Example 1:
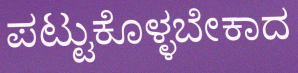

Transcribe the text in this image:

ಪಟ್ಟುಕೊಳ್ಳಬೇಕಾದ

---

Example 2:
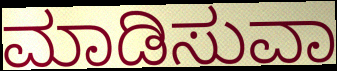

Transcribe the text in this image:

ಮಾಡಿಸುವಾ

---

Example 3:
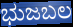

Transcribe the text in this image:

ಭುಜಬಲ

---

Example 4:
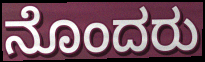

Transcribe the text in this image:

ನೊಂದರು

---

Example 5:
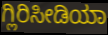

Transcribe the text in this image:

ಗ್ಲಿರಿಸೀಡಿಯಾ